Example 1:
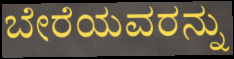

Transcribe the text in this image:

ಬೇರೆಯವರನ್ನು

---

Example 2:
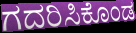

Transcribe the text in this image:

ಗದರಿಸಿಕೊಂಡ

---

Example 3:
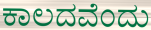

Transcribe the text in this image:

ಕಾಲದವೆಂದು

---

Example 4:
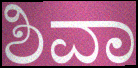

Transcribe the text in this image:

ಶಿವಾ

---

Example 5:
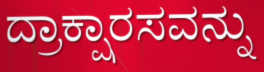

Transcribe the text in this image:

ದ್ರಾಕ್ಷಾರಸವನ್ನು